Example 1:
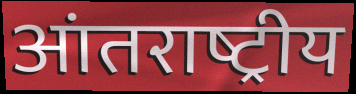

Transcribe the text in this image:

आंतराष्ट्रीय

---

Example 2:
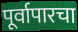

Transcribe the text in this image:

पूर्वापारचा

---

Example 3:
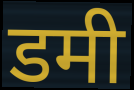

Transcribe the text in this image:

डमी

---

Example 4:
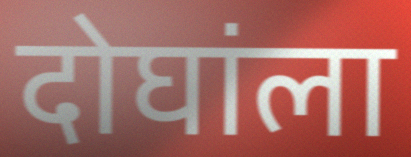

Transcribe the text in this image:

दोघांला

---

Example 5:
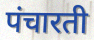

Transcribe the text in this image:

पंचारती